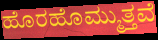
ಹೊರಹೊಮ್ಮುತ್ತವೆ